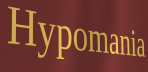
Hypomania